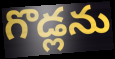
గొడ్లను